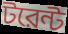
টরেন্ট